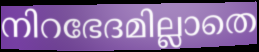
നിറഭേദമില്ലാതെ